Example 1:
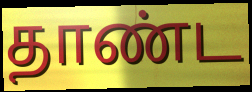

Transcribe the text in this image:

தாண்ட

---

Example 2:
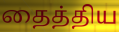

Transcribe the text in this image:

தைத்திய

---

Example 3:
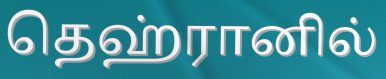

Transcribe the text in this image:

தெஹ்ரானில்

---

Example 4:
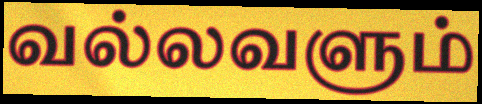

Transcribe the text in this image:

வல்லவளும்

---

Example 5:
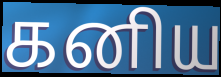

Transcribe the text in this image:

கனிய